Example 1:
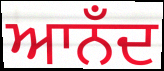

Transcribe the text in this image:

ਆਨਁਦ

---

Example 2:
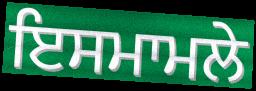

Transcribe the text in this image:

ਇਸਮਾਮਲੇ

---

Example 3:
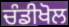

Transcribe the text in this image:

ਚੰਡੀਖੋਲ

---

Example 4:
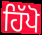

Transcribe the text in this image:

ਹਿੱਪੋ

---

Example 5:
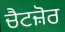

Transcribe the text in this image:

ਚੈਟਜ਼ੋਰ